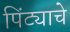
पिंट्याचे